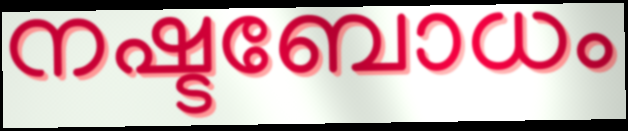
നഷ്ടബോധം